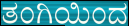
ತಂಗಿಯಿಂದ